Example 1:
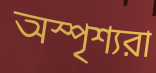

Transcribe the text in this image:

অস্পৃশ্যরা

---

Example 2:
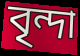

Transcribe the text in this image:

বৃন্দা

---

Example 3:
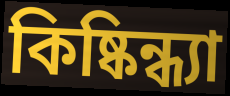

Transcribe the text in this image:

কিষ্কিন্ধ্যা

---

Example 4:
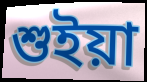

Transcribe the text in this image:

শুইয়া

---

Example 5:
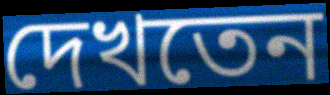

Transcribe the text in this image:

দেখতেন